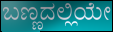
ಬಣ್ಣದಲ್ಲಿಯೇ